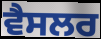
ਵੈਸਲਰ